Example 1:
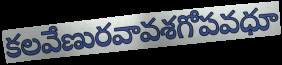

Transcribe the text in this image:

కలవేణురవావశగోపవధూ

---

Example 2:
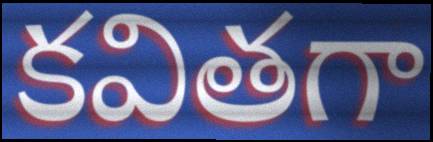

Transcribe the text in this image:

కవితగా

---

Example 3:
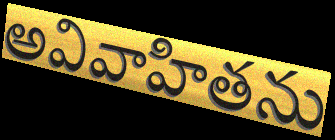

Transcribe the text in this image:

అవివాహితను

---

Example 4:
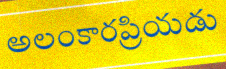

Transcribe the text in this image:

అలంకారప్రియడు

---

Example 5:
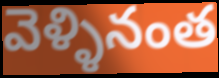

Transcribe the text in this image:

వెళ్ళినంత